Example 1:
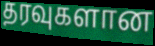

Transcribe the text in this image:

தரவுகளான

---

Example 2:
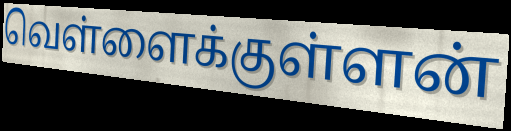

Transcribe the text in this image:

வெள்ளைக்குள்ளன்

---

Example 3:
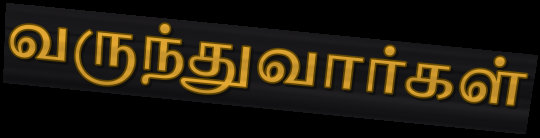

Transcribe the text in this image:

வருந்துவார்கள்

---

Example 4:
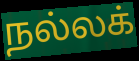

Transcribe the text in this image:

நல்லக்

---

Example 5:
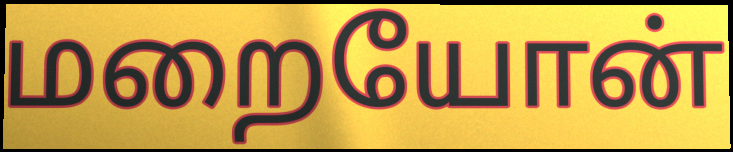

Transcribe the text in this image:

மறையோன்